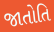
જાતોતિ